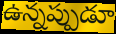
ఉన్నప్పుడూ